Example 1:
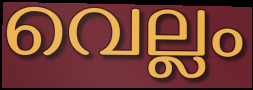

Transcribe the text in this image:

വെല്ലം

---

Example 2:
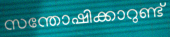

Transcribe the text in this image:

സന്തോഷിക്കാറുണ്ട്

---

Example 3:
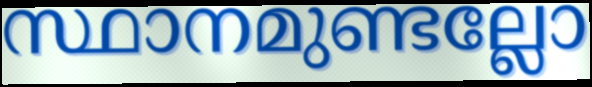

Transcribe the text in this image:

സ്ഥാനമുണ്ടല്ലോ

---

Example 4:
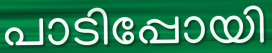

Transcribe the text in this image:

പാടിപ്പോയി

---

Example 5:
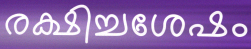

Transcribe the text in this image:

രക്ഷിച്ചശേഷം